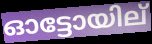
ഓട്ടോയില്